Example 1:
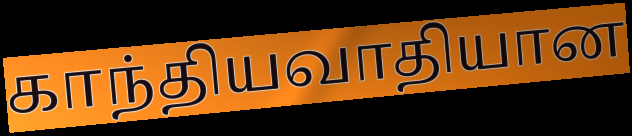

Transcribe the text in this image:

காந்தியவாதியான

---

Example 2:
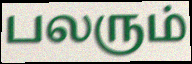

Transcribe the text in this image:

பலரும்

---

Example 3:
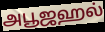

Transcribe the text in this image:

அபூஜஹல்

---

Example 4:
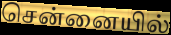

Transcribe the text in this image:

சென்னையில்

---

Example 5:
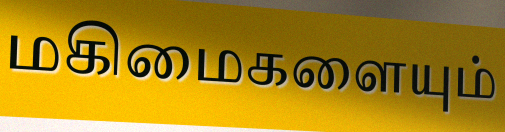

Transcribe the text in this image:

மகிமைகளையும்